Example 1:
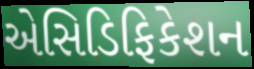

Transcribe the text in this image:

એસિડિફિકેશન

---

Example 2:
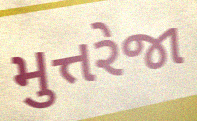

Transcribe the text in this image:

મુત્તરેજા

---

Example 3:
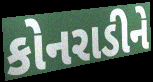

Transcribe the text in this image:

કોનરાડીને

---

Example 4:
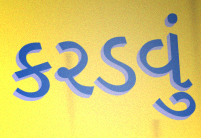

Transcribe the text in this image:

કરડવું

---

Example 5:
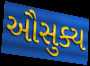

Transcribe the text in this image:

ઔસુક્ય